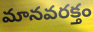
మానవరక్తం